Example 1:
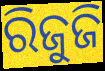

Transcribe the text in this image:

ରିଜୁଜି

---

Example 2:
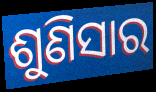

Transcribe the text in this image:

ଶୁଣିସାର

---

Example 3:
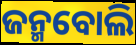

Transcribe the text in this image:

ଜନ୍ମବୋଲି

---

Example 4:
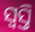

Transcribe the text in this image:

ସ୍ଵସ୍ତି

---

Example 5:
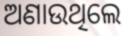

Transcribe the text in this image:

ଅଣାଉଥିଲେ